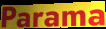
Parama